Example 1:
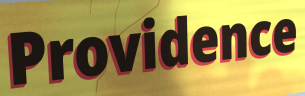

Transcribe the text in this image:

Providence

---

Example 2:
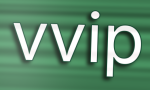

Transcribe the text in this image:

vvip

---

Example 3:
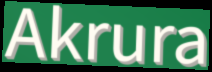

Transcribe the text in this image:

Akrura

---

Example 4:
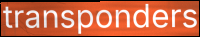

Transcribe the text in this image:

transponders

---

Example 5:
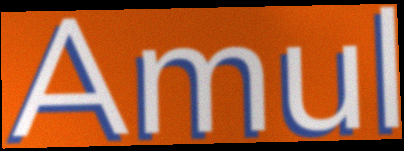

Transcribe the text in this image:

Amul